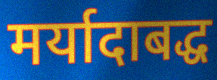
मर्यादाबद्ध